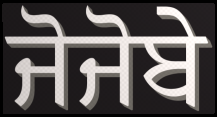
ਜੋਜੋਬੇ